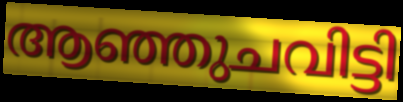
ആഞ്ഞുചവിട്ടി